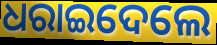
ଧରାଇଦେଲେ